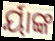
ର୍ୟାଙ୍କ